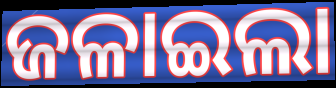
ଜଳାଇଲା